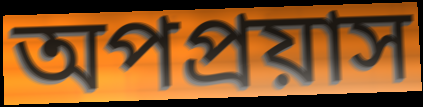
অপপ্রয়াস